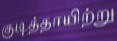
குடித்தாயிற்று